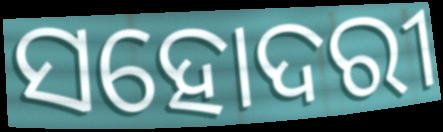
ସହୋଦରୀ